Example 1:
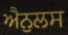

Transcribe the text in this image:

ਐਨੁਲਸ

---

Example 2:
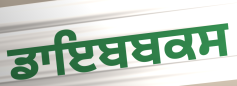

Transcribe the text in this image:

ਡਾਇਬਬਕਸ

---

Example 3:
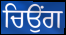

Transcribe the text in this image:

ਚਿਉਂਗ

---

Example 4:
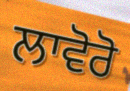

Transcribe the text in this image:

ਲਾਵੋਰੋ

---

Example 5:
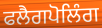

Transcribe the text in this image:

ਫਲੈਗਪੋਲਿੰਗ